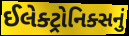
ઈલેક્ટ્રોનિક્સનું